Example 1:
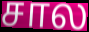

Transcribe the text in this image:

சால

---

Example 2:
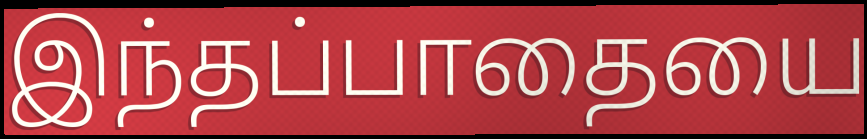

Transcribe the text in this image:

இந்தப்பாதையை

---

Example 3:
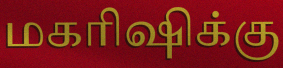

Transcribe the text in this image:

மகரிஷிக்கு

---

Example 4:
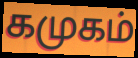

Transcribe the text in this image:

கமுகம்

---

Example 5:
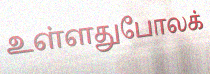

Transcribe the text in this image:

உள்ளதுபோலக்